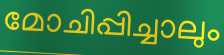
മോചിപ്പിച്ചാലും